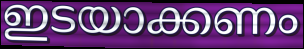
ഇടയാക്കണം